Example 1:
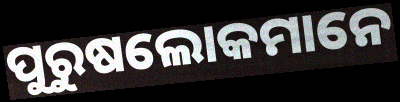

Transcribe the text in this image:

ପୁରୁଷଲୋକମାନେ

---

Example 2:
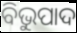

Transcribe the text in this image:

ବିଭୁପାଦ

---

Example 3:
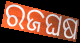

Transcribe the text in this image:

ରଜଘଷ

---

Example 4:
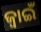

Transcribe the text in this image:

ଜ୍ଵାଇଁ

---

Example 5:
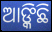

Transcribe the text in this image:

ଆଙ୍କିଛି